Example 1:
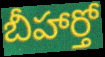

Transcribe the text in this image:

బీహార్తో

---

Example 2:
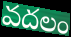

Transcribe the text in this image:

వదలం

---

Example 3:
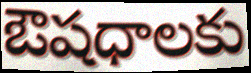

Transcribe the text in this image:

ఔషధాలకు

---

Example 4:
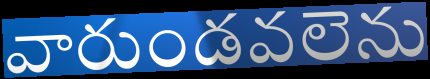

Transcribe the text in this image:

వారుండవలెను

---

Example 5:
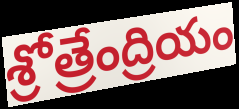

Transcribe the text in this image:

శ్రోత్రేంద్రియం